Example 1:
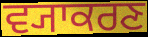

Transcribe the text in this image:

ਵ੍ਯਾਕਰਣ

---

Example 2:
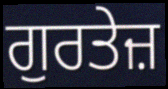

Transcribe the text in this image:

ਗੁਰਤੇਜ਼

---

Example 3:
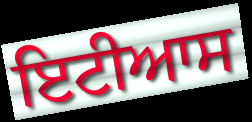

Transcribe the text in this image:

ਇਟੀਆਸ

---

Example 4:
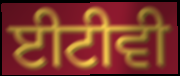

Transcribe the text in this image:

ਈਟੀਵੀ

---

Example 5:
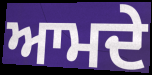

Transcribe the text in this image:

ਆਮਦੇ